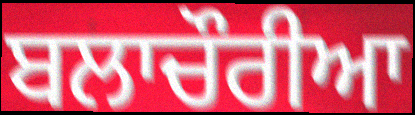
ਬਲਾਚੌਰੀਆ